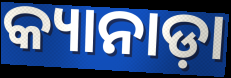
କ୍ୟାନାଡ଼ା